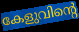
കേളുവിന്റെ